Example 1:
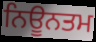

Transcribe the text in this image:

ਨਿਊਨਤਮ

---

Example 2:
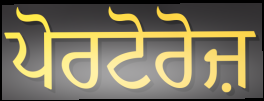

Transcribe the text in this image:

ਪੋਰਟੋਰੋਜ਼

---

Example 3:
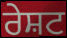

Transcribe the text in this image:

ਰੇਸ਼ਟ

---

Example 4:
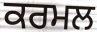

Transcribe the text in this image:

ਕਰਮਲ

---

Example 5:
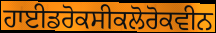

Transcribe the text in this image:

ਹਾਈਡਰੋਕਸੀਕਲੋਰੋਕਵੀਨ